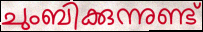
ചുംബിക്കുന്നുണ്ട്